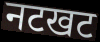
नटखट